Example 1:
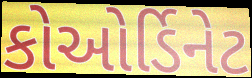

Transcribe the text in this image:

કોઓર્ડિનેટ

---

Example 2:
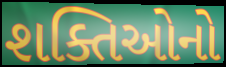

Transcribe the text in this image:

શક્તિઓનો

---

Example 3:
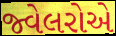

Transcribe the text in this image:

જ્વેલરોએ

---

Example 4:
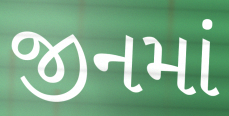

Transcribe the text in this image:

જીનમાં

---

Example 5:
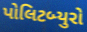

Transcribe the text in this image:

પોલિટબ્યુરો